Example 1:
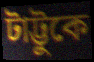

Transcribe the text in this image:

টাট্টুকে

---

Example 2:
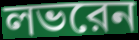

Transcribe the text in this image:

লভরেন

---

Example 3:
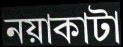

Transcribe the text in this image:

নয়াকাটা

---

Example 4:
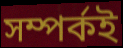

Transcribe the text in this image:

সম্পর্কই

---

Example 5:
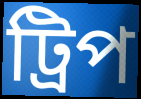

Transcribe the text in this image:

ট্রিপ